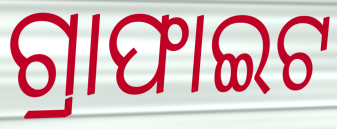
ଗ୍ରାଫାଇଟ